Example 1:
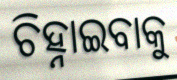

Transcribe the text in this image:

ଚିହ୍ନାଇବାକୁ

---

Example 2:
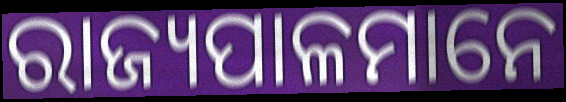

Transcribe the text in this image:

ରାଜ୍ୟପାଳମାନେ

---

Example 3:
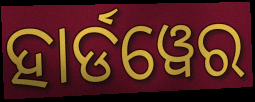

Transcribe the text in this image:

ହାର୍ଡୱେର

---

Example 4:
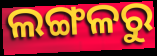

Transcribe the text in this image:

ଲଙ୍ଗଳରୁ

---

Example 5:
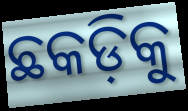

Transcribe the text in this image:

ଛକଡ଼ିକୁ